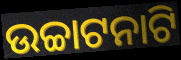
ଉଚ୍ଚାଟନାଟି